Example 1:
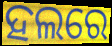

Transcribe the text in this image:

ହଲରେ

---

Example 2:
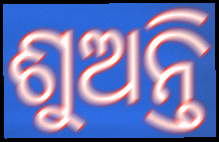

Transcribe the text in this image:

ଶୁଅନ୍ତି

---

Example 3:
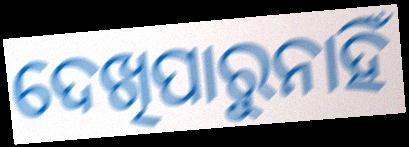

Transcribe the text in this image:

ଦେଖିପାରୁନାହିଁ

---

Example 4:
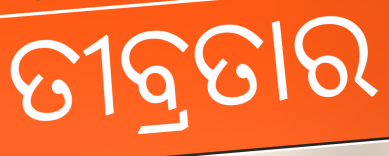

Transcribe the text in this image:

ତୀବ୍ରତାର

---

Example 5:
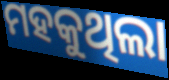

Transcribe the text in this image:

ମହକୁଥିଲା